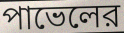
পাভেলের